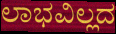
ಲಾಭವಿಲ್ಲದ